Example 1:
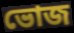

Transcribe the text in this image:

ভোজ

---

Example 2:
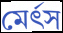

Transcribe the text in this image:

মের্ৎস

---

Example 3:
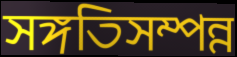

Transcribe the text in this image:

সঙ্গতিসম্পন্ন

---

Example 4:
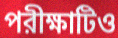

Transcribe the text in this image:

পরীক্ষাটিও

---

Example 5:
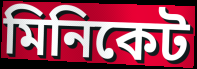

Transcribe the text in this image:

মিনিকেট